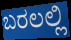
ಬರಲಲ್ಲಿ